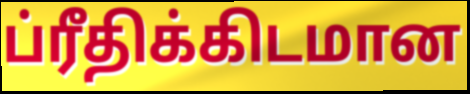
ப்ரீதிக்கிடமான